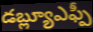
డబ్ల్యూఎఫ్పీ